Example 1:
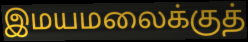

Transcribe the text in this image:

இமயமலைக்குத்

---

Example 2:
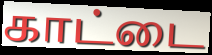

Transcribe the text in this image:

காட்டை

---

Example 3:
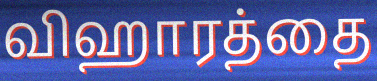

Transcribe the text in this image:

விஹாரத்தை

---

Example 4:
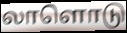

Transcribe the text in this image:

லாளொடு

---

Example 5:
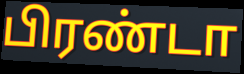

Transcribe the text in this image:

பிரண்டா